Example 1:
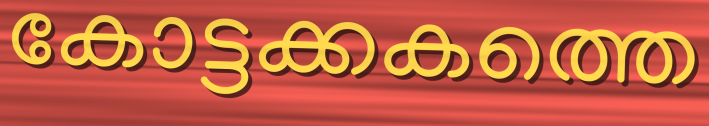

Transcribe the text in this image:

കോട്ടക്കകത്തെ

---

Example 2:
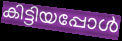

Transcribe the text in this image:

കിട്ടിയപ്പോൾ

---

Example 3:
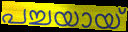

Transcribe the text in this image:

പച്ചയായ്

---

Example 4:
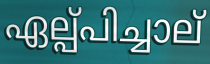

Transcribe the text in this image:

ഏല്പ്പിച്ചാല്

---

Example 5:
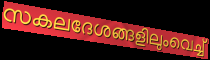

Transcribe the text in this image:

സകലദേശങ്ങളിലുംവെച്ച്